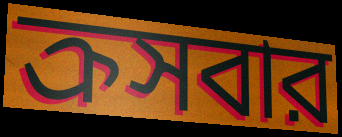
ক্রসবার